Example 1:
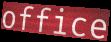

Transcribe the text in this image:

office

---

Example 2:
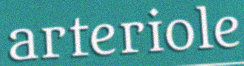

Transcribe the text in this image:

arteriole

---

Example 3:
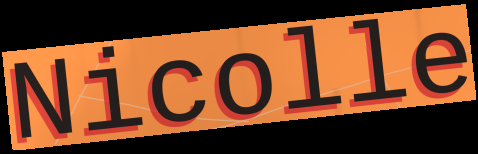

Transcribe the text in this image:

Nicolle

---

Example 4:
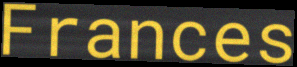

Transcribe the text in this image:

Frances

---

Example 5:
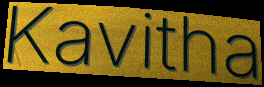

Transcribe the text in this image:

Kavitha